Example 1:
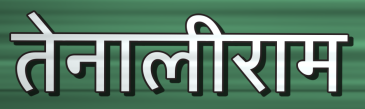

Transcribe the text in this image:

तेनालीराम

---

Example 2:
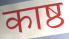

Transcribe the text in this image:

काष्ठ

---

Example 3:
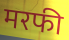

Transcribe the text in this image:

मरफी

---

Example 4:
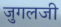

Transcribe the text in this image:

जुगलजी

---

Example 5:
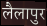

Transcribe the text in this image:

लैलापुर